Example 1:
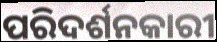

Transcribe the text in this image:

ପରିଦର୍ଶନକାରୀ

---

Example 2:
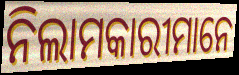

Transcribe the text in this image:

ନିଲାମକାରୀମାନେ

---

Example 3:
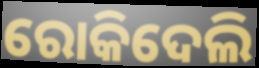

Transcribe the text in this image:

ରୋକିଦେଲି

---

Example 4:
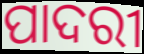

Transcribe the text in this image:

ପାଦରୀ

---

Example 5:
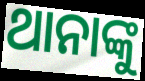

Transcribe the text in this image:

ଥାନାଙ୍କୁ